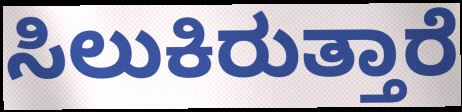
ಸಿಲುಕಿರುತ್ತಾರೆ